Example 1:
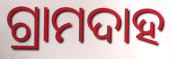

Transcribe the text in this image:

ଗ୍ରାମଦାହ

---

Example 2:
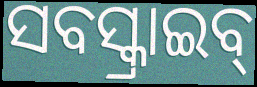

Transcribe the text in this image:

ସବସ୍କ୍ରାଇବ୍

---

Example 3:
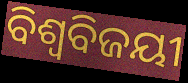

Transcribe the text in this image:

ବିଶ୍ବବିଜୟୀ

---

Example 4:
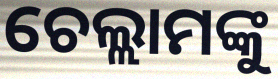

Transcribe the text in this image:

ଚେଲ୍ଲାମଙ୍କୁ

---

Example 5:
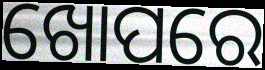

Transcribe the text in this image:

ଖୋପରେ